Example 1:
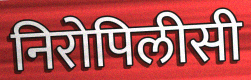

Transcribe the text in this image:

निरोपिलीसी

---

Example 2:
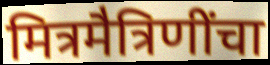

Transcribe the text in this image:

मित्रमैत्रिणींचा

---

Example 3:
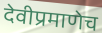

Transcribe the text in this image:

देवीप्रमाणेच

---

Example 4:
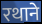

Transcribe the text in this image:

रथाने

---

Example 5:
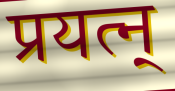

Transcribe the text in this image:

प्रयत्न्